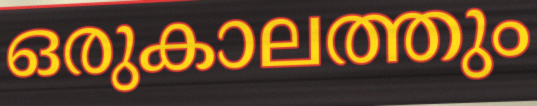
ഒരുകാലത്തും